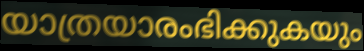
യാത്രയാരംഭിക്കുകയും